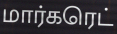
மார்கரெட்